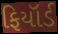
ફિયૉર્ડ